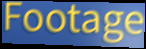
Footage